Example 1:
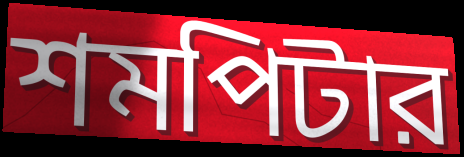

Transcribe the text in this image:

শমপিটার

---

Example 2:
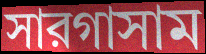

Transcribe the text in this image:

সারগাসাম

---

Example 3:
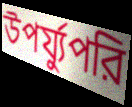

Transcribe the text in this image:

উপর্য্যুপরি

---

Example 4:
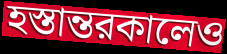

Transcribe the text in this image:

হস্তান্তরকালেও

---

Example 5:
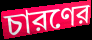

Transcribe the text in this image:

চারণের